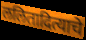
ललितादित्याचे